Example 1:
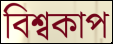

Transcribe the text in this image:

বিশ্বকাপ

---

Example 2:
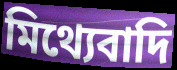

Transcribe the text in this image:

মিথ্যেবাদি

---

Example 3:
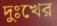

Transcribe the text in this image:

দুঃখের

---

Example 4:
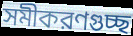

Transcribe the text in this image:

সমীকরণগুচ্ছ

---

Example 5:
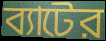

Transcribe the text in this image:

ব্যাটের